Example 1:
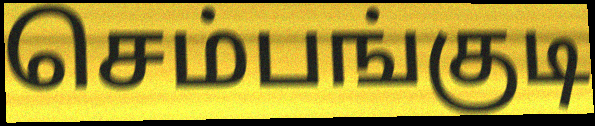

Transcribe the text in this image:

செம்பங்குடி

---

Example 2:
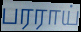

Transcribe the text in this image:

பரராய்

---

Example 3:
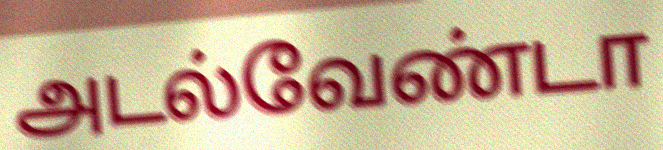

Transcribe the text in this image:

அடல்வேண்டா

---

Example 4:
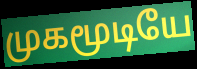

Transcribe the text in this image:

முகமூடியே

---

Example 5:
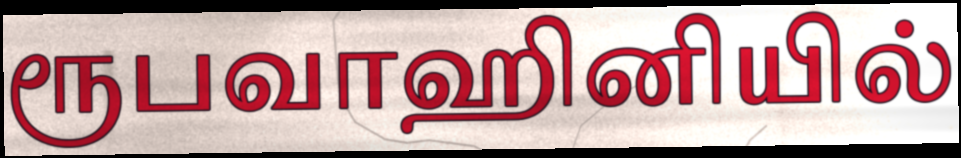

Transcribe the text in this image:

ரூபவாஹினியில்